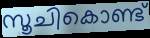
സൂചികൊണ്ട്